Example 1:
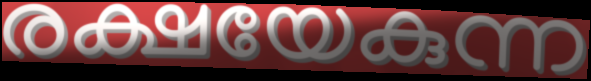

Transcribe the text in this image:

രക്ഷയേകുന്ന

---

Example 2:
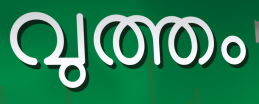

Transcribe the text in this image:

വുത്തം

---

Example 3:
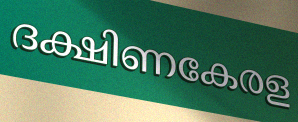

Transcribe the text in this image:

ദക്ഷിണകേരള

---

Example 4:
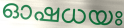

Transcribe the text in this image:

ഓഷധയഃ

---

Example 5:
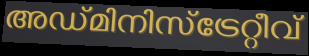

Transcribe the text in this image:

അഡ്മിനിസ്ട്രേറ്റീവ്